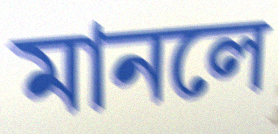
মানলে